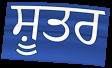
ਸ਼ੂਤਰ